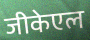
जीकेएल